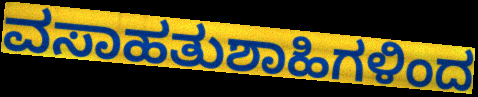
ವಸಾಹತುಶಾಹಿಗಳಿಂದ